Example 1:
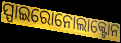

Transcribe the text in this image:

ସ୍ପାଇରୋନୋଲାକ୍ଟୋନ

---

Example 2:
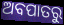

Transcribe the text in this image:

ଅବପାତରୁ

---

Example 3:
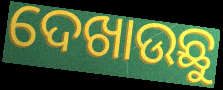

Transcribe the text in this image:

ଦେଖାଉଛୁ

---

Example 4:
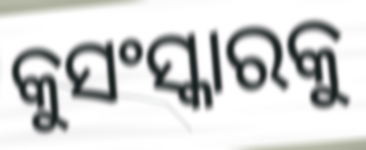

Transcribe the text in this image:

କୁସଂସ୍କାରକୁ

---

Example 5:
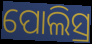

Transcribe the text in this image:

ପୋଲିସ୍ର